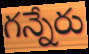
గన్నేరు